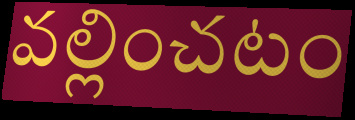
వల్లించటం